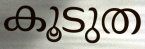
കൂടുത